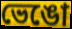
ভেঙো